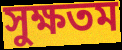
সুক্ষতম